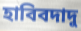
হাবিবদাদু